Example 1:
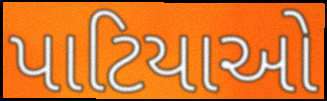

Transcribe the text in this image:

પાટિયાઓ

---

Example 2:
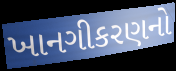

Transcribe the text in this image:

ખાનગીકરણનો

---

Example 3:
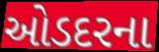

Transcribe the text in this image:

ઓડદરના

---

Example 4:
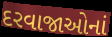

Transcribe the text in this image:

દરવાજાઓનાં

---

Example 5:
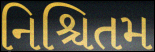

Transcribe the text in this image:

નિશ્ચિતમ